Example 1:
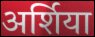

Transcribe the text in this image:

अर्शिया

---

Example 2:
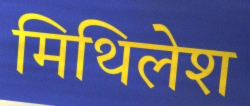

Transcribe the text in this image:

मिथिलेश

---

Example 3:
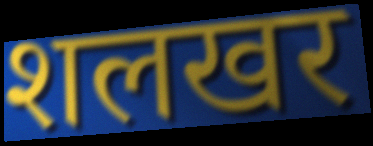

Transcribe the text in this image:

शलखर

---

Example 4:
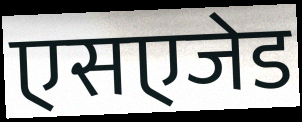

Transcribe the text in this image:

एसएजेड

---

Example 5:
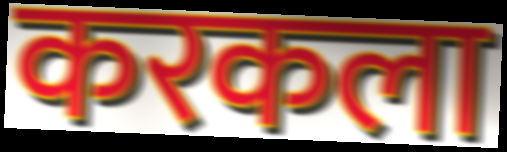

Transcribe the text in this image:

करकला